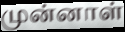
முன்னாள்